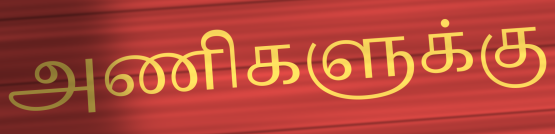
அணிகளுக்கு